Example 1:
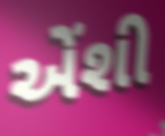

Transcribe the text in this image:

એંશી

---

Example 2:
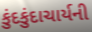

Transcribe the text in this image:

કુંદકુંદાચાર્યની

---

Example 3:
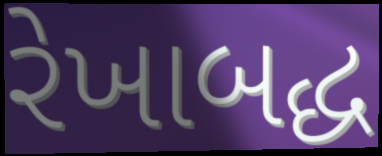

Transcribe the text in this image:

રેખાબદ્ધ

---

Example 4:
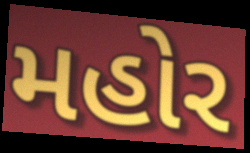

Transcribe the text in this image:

મહોર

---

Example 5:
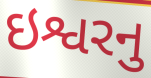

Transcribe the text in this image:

ઇશ્વરનુ